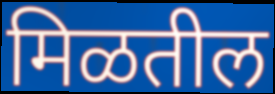
मिळतील